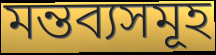
মন্তব্যসমূহ